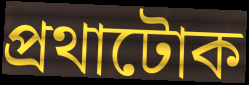
প্ৰথাটোক